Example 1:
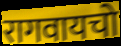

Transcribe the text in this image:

रागवायचो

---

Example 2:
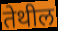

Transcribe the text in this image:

तेथील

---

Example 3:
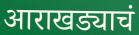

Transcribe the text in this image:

आराखड्याचं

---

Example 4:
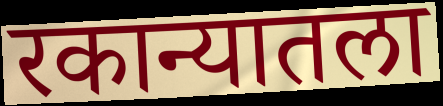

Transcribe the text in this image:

रकान्यातला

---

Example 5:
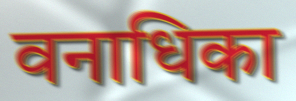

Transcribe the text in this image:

वनाधिका